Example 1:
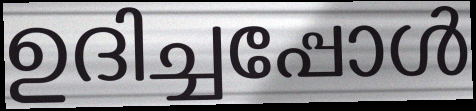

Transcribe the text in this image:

ഉദിച്ചപ്പോൾ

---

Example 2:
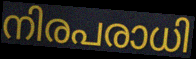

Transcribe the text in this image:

നിരപരാധി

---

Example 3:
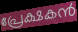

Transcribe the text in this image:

പ്രേക്ഷകൻ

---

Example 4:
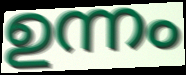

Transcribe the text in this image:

ഉന്നം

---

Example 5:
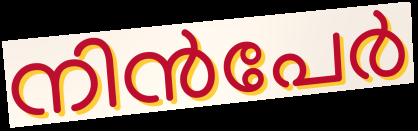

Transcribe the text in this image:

നിൻപേർ